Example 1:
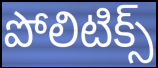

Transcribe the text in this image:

పోలిటిక్స్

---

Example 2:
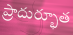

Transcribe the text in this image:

ప్రాదుర్భూత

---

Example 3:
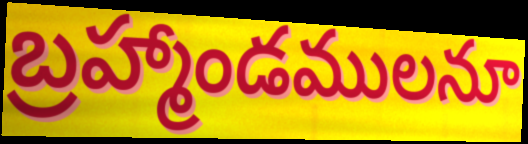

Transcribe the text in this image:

బ్రహ్మాండములనూ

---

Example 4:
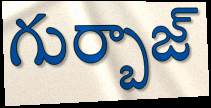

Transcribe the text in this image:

గుర్బాజ్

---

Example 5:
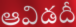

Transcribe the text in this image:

ఆవిడదీ